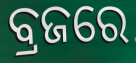
ବ୍ରଜରେ